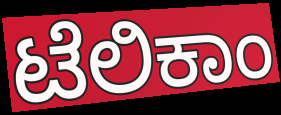
ಟೆಲಿಕಾಂ